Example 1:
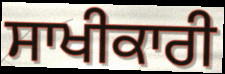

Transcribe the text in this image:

ਸਾਖੀਕਾਰੀ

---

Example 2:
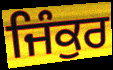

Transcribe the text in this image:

ਜਿੰਕੁਰ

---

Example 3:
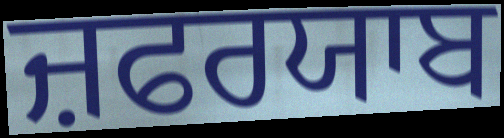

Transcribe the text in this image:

ਜ਼ਫਰਯਾਬ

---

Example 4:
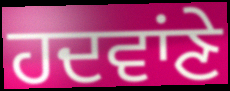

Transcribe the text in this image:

ਹਦਵਾਂਣੇ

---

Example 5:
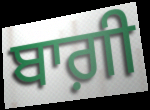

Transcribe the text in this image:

ਬਾਗ਼ੀ